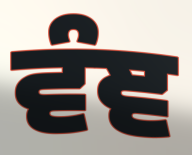
ਵੰਞ